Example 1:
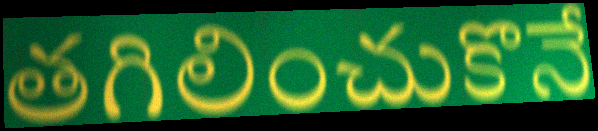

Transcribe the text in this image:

తగిలించుకొనే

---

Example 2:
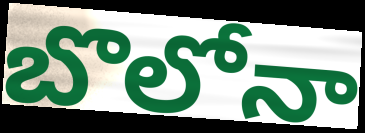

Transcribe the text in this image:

బొలోనా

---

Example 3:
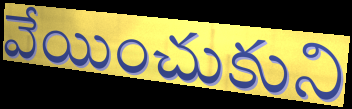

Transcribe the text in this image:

వేయించుకుని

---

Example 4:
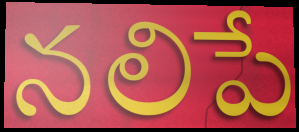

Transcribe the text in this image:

నలిపే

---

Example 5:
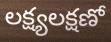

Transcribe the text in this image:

లక్ష్యలక్షణో